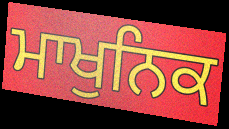
ਮਾਖੁਨਿਕ